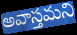
అవాస్తమని